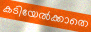
കടിയേൽക്കാതെ